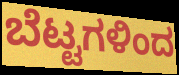
ಬೆಟ್ಟಗಳಿಂದ